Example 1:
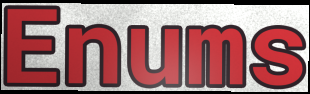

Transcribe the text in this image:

Enums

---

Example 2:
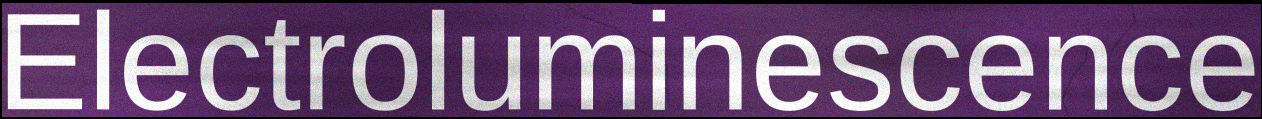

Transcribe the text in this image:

Electroluminescence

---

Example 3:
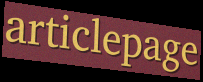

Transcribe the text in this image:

articlepage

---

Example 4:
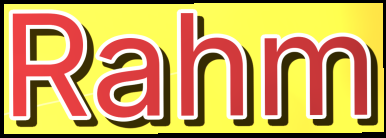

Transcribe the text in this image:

Rahm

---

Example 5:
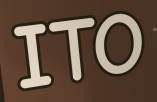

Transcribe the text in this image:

ITO